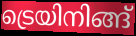
ട്രെയിനിങ്ങ്